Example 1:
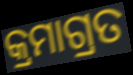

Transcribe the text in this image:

କ୍ରମାଗ୍ରତ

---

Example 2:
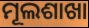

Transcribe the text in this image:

ମୂଲଶାଖା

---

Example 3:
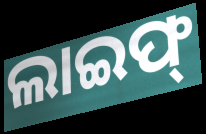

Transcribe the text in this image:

ଲାଇଫ୍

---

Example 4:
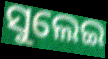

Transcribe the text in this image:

ସୁଲେଇ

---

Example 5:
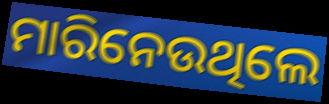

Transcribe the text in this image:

ମାରିନେଉଥିଲେ